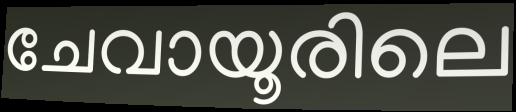
ചേവായൂരിലെ